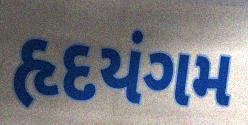
હૃદયંગમ